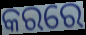
କରରେ